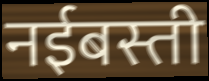
नईबस्ती